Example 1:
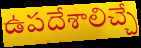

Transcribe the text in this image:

ఉపదేశాలిచ్చే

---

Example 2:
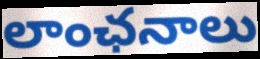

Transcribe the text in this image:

లాంఛనాలు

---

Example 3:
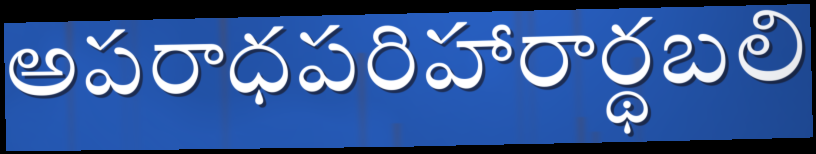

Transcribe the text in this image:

అపరాధపరిహారార్థబలి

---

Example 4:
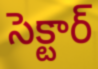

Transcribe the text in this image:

సెక్టార్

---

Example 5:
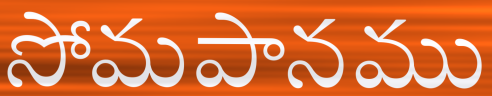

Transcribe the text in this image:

సోమపానము